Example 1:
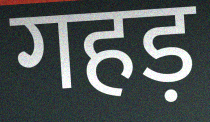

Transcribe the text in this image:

गहड़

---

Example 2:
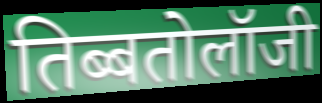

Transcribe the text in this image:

तिब्बतोलॉजी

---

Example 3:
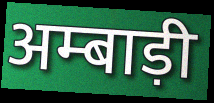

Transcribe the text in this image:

अम्बाड़ी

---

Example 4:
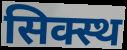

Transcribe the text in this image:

सिक्स्थ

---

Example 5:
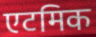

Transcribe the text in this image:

एटमिक